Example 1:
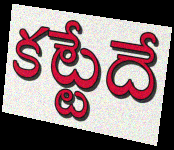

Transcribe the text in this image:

కట్టేదే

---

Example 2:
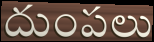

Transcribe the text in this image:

దుంపలు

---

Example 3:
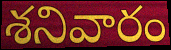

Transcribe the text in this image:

శనివారం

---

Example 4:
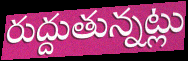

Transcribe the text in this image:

రుద్దుతున్నట్లు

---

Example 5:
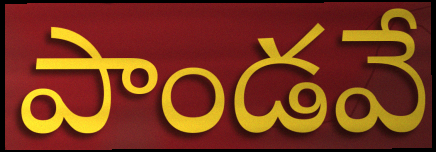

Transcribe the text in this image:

పాండవే